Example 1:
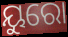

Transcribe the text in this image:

ୟୁରୋ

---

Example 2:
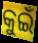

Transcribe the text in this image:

କୁଇଁ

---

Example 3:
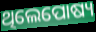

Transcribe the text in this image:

ଥିଲେପୋଷ୍ୟ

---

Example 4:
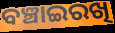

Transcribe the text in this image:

ବଞ୍ଚାଇରଖି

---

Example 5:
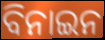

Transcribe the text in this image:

ବିନାଇନ